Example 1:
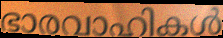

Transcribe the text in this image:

ഭാരവാഹികൾ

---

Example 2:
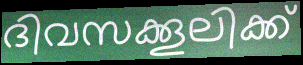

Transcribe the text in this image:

ദിവസക്കൂലിക്ക്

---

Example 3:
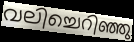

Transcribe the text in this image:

വലിച്ചെറിഞ്ഞു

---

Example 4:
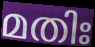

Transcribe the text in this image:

മതിഃ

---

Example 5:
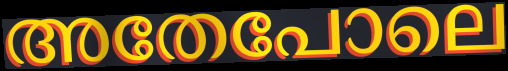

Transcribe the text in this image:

അതേപോലെ